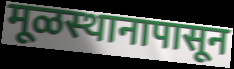
मूळस्थानापासून